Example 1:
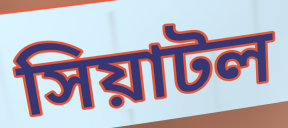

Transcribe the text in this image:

সিয়াটল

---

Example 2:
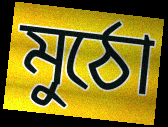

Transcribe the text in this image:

মুঠো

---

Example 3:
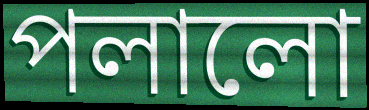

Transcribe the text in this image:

পলালো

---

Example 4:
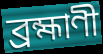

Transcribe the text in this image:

ব্রহ্মাণী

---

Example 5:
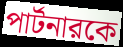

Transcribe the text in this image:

পার্টনারকে